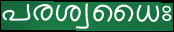
പരശ്വധൈഃ